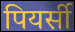
पियर्सी